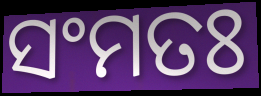
ସଂମତଃ